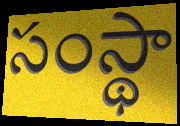
సంస్థా